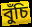
বুঁচি